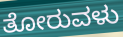
ತೋರುವಳು